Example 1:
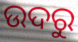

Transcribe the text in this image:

ଉଦରୁ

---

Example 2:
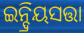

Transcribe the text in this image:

ଇନ୍ଦ୍ରିୟସତ୍ତା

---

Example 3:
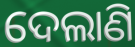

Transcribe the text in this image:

ଦେଲାଣି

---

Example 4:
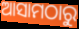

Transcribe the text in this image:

ଆସାମଠାରୁ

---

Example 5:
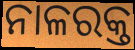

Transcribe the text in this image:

ନାଳରକ୍ତ